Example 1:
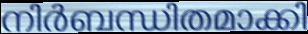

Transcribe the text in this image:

നിർബന്ധിതമാക്കി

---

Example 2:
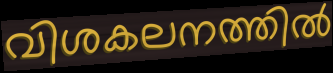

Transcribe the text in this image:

വിശകലനത്തിൽ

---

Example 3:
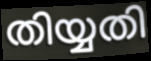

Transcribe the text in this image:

തിയ്യതി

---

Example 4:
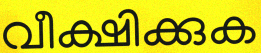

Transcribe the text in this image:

വീക്ഷിക്കുക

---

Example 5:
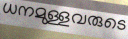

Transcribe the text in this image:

ധനമുള്ളവരുടെ